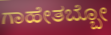
ಗಾಹೇತಬ್ಬೋ